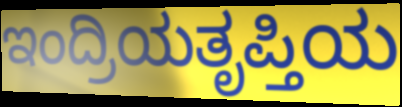
ಇಂದ್ರಿಯತೃಪ್ತಿಯ